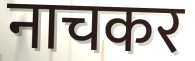
नाचकर